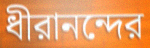
ধীরানন্দের